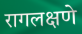
रागलक्षणे